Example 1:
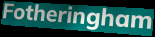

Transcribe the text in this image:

Fotheringham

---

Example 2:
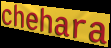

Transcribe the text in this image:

chehara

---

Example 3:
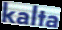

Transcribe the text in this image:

kalta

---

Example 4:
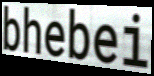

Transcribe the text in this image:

bhebei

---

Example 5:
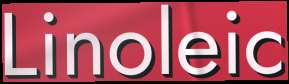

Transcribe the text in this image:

Linoleic